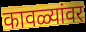
कावळ्यांवर